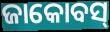
ଜାକୋବସ୍